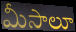
మీసాలూ